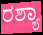
ರಶ್ಯಾ